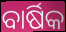
ବାର୍ଷିକ